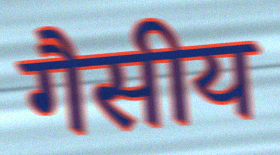
गैसीय